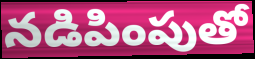
నడిపింపుతో